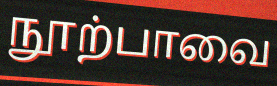
நூற்பாவை